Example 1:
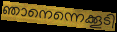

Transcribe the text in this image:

ഞാനെന്നെക്കൂടി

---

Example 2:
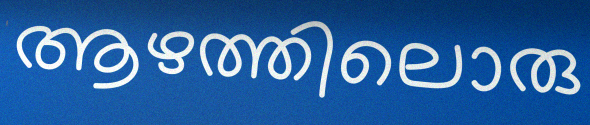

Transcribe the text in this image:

ആഴത്തിലൊരു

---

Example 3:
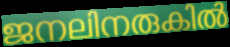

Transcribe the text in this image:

ജനലിനരുകിൽ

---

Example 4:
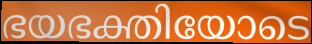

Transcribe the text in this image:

ഭയഭക്തിയോടെ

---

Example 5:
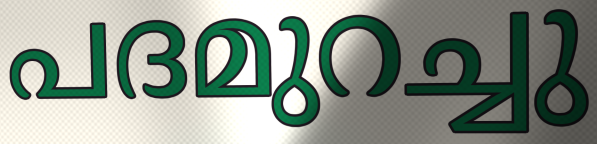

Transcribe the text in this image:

പദമുറച്ചു